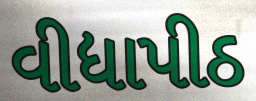
વીદ્યાપીઠ